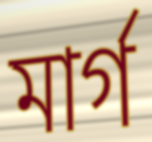
মাৰ্গ